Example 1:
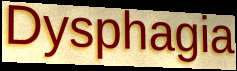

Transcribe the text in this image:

Dysphagia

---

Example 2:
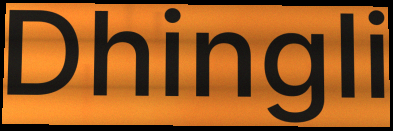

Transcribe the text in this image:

Dhingli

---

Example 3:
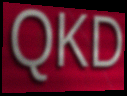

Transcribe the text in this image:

QKD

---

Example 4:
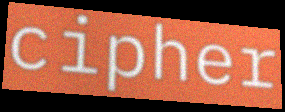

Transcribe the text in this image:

cipher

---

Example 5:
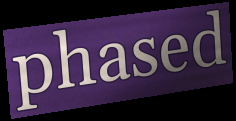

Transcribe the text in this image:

phased